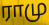
ராமு